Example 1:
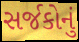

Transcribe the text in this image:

સર્જકોનું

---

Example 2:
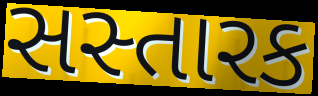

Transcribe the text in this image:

સસ્તારક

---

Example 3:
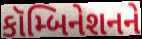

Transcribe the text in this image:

કૉમ્બિનેશનને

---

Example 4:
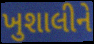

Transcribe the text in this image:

ખુશાલીને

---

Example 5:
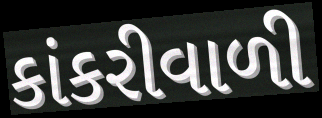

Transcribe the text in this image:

કાંકરીવાળી